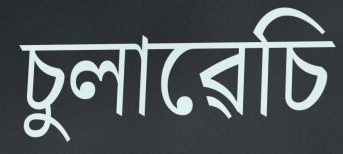
চুলাৱেচি